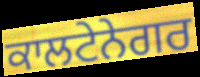
ਕਾਲਟੇਨੇਗਰ